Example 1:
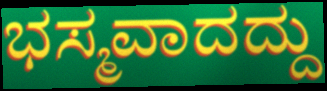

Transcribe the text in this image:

ಭಸ್ಮವಾದದ್ದು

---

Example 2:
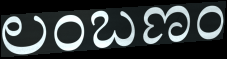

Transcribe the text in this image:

ಲಂಬಣಂ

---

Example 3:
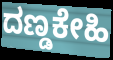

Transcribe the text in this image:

ದಣ್ಡಕೇಹಿ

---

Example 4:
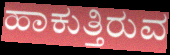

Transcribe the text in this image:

ಹಾಕುತ್ತಿರುವ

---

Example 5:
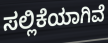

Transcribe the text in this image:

ಸಲ್ಲಿಕೆಯಾಗಿವೆ